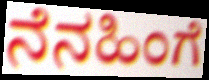
ನೆನಹಿಂಗೆ